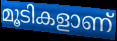
മൂടികളാണ്